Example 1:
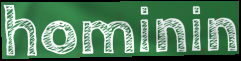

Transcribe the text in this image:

hominin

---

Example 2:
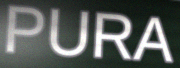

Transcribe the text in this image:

PURA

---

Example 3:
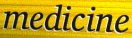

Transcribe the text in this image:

medicine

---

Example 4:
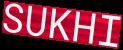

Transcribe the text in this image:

SUKHI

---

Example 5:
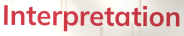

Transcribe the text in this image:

Interpretation